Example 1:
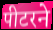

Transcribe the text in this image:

पीटरने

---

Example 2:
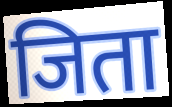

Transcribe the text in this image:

जिता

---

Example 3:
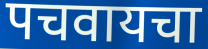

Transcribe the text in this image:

पचवायचा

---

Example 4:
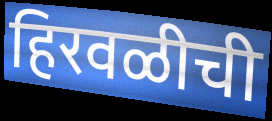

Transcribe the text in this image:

हिरवळीची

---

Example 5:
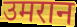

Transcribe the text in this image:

उमरान